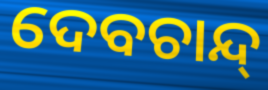
ଦେବଚାନ୍ଦ୍